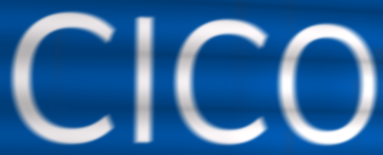
CICO